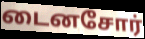
டைனசோர்